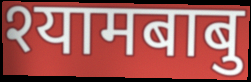
श्यामबाबु